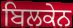
ਬਿਲਕੇਨ